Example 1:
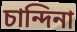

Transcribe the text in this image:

চান্দিনা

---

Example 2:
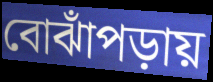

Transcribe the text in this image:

বোঝাঁপড়ায়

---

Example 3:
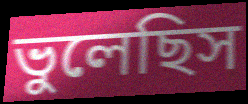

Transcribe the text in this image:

ভুলেছিস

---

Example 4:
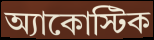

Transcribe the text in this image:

অ্যাকোস্টিক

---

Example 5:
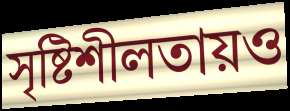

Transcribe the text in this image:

সৃষ্টিশীলতায়ও